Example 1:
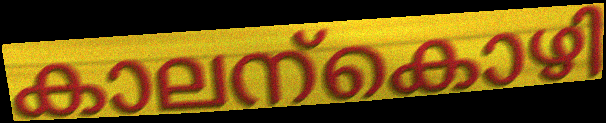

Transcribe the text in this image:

കാലന്കൊഴി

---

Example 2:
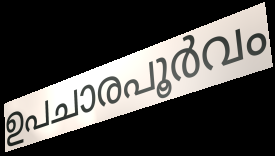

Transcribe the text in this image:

ഉപചാരപൂർവം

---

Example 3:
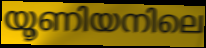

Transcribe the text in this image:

യൂണിയനിലെ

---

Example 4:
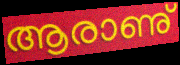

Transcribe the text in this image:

ആരാണു്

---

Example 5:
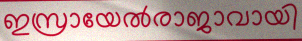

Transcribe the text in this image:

ഇസ്രായേൽരാജാവായി